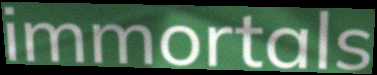
immortals